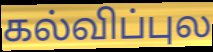
கல்விப்புல